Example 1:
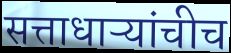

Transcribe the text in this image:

सत्ताधाऱ्यांचीच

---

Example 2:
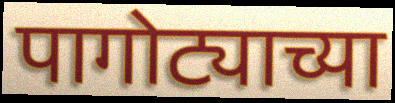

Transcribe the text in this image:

पागोट्याच्या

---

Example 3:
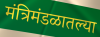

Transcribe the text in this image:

मंत्रिमंडळातल्या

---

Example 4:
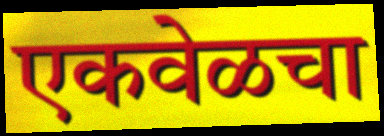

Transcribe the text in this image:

एकवेळचा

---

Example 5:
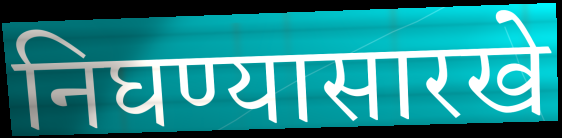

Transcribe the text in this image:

निघण्यासारखे